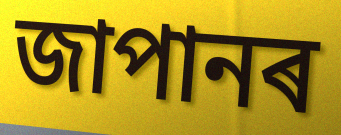
জাপানৰ